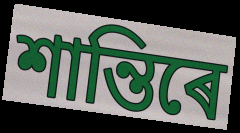
শান্তিৰে